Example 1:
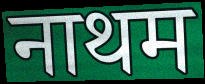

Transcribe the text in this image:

नाथम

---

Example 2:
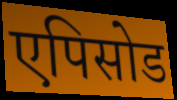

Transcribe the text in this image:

एपिसोड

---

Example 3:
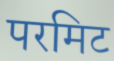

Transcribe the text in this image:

परमिट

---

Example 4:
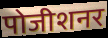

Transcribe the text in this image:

पोजीशनर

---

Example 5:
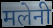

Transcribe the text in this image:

मलेनी